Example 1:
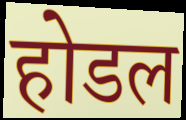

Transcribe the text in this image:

होडल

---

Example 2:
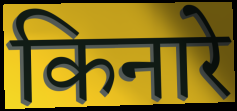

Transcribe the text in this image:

किनारे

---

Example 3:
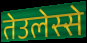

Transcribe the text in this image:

तेउलेस्से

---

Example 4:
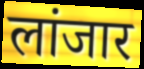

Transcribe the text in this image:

लांजार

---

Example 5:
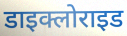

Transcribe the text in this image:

डाइक्लोराइड